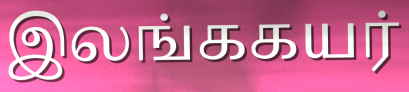
இலங்ககயர்